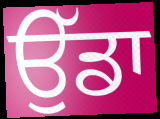
ਉੱਡਾ